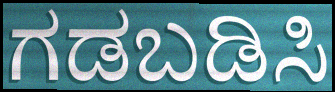
ಗಡಬಡಿಸಿ